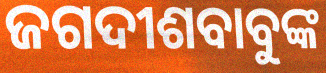
ଜଗଦୀଶବାବୁଙ୍କ